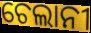
ଚେଲାନୀ